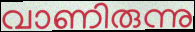
വാണിരുന്നു